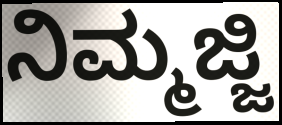
ನಿಮ್ಮಜ್ಜಿ